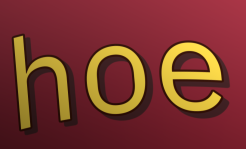
hoe